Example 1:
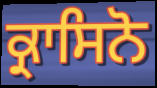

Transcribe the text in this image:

ਕ੍ਰਾਸਿਨੋ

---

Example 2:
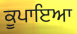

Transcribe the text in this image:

ਕੂਪਾਇਆ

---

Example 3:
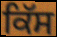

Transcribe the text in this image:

ਕਿੱਸ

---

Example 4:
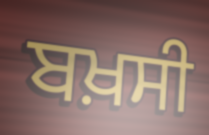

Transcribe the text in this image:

ਬਖ਼ਸੀ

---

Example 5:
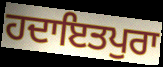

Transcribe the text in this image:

ਹਦਾਇਤਪੁਰਾ